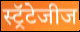
स्ट्रॅटेजीज